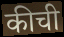
कीची